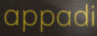
appadi